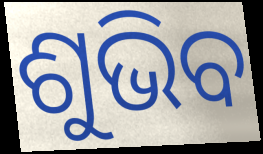
ଶୁଭିବ